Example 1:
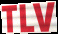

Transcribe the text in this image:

TLV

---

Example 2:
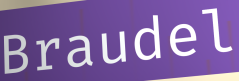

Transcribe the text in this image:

Braudel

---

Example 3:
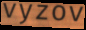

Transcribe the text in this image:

vyzov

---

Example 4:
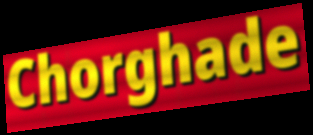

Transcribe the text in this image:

Chorghade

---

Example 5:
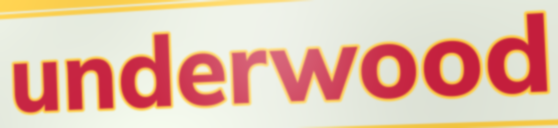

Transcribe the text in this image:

underwood